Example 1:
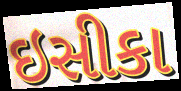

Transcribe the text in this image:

ઇસીકા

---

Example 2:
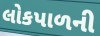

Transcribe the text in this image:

લોકપાળની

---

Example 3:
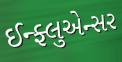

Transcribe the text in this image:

ઈન્ફ્લુએન્સર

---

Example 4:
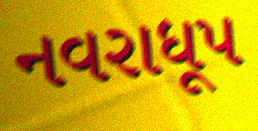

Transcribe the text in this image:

નવરાધૂપ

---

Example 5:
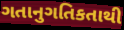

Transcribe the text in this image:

ગતાનુગતિકતાથી